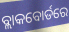
ବ୍ଲାକବୋର୍ଡରେ